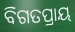
ବିଗତପ୍ରାୟ